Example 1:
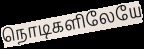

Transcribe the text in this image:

நொடிகளிலேயே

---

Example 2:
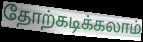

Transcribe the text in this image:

தோற்கடிக்கலாம்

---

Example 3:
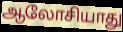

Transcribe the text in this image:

ஆலோசியாது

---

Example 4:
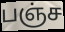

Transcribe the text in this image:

பஞ்ச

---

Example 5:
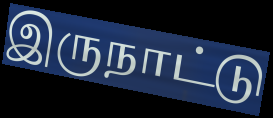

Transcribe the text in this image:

இருநாட்டு